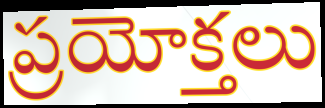
ప్రయోక్తలు